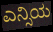
ಎನ್ಸಿಯ